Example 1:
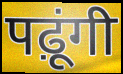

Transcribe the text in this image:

पढ़ूंगी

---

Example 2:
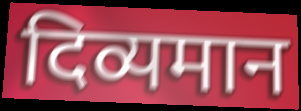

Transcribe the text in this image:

दिव्यमान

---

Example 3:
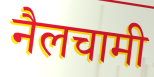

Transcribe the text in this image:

नैलचामी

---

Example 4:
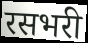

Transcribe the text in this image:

रसभरी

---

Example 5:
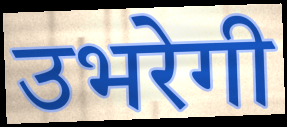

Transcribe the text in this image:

उभरेगी